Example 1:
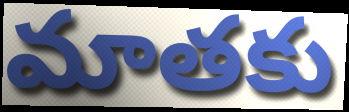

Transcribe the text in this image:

మాతకు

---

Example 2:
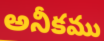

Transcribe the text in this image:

అనీకము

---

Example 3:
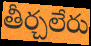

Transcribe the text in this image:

తీర్చలేరు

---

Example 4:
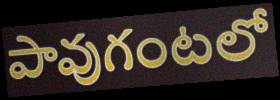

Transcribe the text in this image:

పావుగంటలో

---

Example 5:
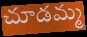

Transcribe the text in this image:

చూడమ్మ